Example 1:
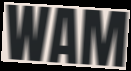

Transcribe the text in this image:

WAM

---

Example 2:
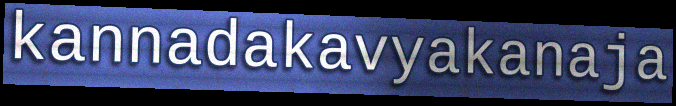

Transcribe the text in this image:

kannadakavyakanaja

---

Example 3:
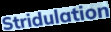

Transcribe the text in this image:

Stridulation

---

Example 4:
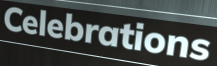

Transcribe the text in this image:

Celebrations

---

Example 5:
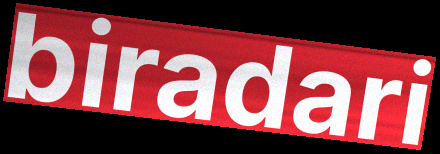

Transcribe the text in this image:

biradari